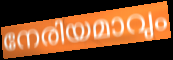
നേരിയമാവും